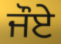
ਜੌਏ